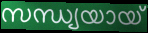
സന്ധ്യയായ്